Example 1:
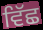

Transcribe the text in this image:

ਵਿੱਛ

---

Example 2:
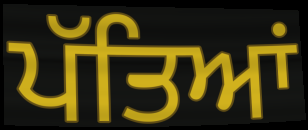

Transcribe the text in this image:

ਪੱਤਿਆਂ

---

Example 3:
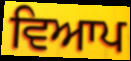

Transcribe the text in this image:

ਵਿਆਪ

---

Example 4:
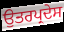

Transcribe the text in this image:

ਉਤਰਪ੍ਰਦੇਸ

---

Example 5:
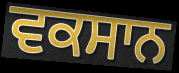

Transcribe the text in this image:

ਵਕਸਾਨ